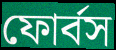
ফোর্বস